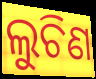
ଲୁଚିଣ